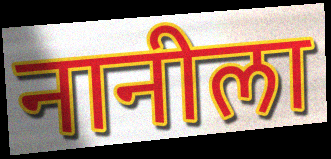
नानीला